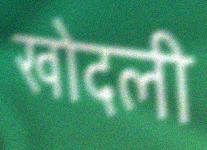
खोदली